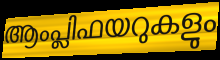
ആംപ്ലിഫയറുകളും